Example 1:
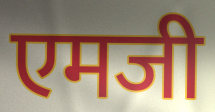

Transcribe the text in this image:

एमजी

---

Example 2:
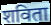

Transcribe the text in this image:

शविता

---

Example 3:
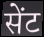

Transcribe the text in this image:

सेंट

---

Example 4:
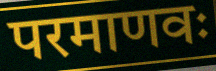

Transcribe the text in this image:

परमाणवः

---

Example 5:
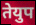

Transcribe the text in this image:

तेयुप